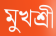
মুখশ্রী